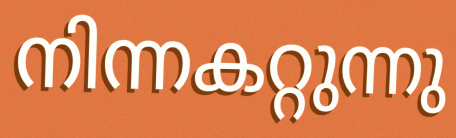
നിന്നകറ്റുന്നു